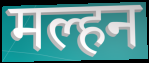
मल्हन